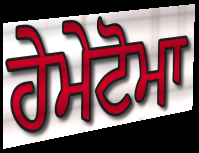
ਹੇਮੇਟੋਮਾ